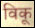
विकू